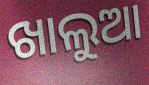
ଖାଲୁଆ